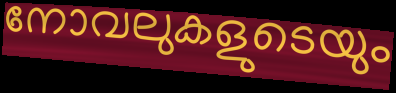
നോവലുകളുടെയും